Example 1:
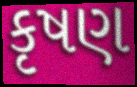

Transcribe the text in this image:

કૃષણ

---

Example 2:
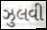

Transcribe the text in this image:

ઝુલવી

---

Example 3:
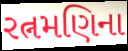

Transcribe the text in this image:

રત્નમણિના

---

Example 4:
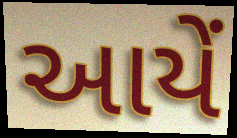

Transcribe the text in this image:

આયેં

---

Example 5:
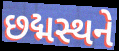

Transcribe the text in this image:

છદ્મસ્થને